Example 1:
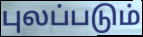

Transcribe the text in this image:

புலப்படும்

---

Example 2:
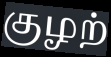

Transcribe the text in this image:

குழற்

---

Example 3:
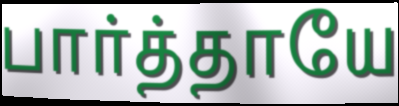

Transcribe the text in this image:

பார்த்தாயே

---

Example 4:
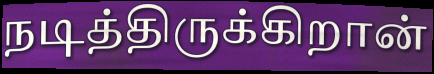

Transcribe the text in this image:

நடித்திருக்கிறான்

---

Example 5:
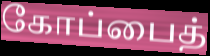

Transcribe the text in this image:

கோப்பைத்